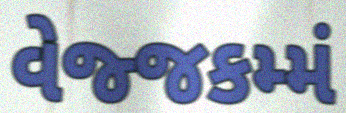
વેજ્જકમ્મં